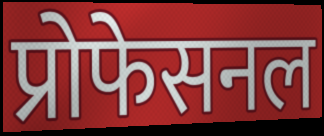
प्रोफेसनल